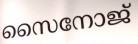
സൈനോജ്